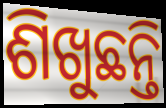
ଶିଖୁଛନ୍ତି